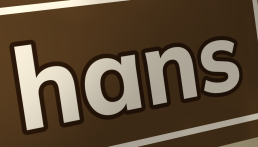
hans